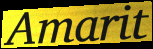
Amarit